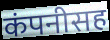
कंपनीसह